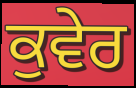
ਕੁਵੇਰ